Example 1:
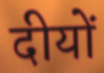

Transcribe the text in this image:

दीयों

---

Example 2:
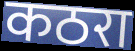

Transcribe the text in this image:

कठरा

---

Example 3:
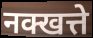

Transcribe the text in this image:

नक्खत्ते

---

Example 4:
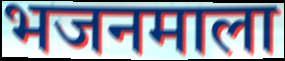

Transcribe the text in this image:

भजनमाला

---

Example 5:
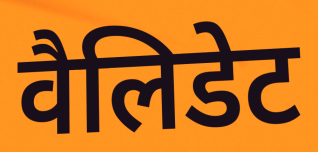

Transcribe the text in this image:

वैलिडेट